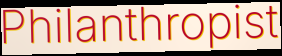
Philanthropist